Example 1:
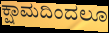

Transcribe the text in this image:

ಕ್ಷಾಮದಿಂದಲೂ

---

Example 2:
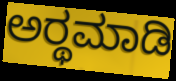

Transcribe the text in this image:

ಅರ್‍ಥಮಾಡಿ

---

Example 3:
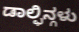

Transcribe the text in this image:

ಡಾಲ್ಫಿನ್ಗಳು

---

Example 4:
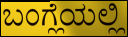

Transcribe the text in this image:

ಬಂಗ್ಲೆಯಲ್ಲಿ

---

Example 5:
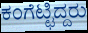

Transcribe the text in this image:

ಕಂಗೆಟ್ಟಿದ್ದರು